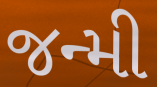
જન્મી